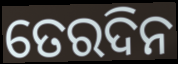
ତେରଦିନ